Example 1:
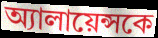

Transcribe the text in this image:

অ্যালায়েন্সকে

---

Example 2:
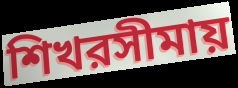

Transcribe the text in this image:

শিখরসীমায়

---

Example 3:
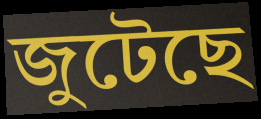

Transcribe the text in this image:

জুটেছে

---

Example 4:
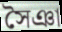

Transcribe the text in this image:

সৈঞা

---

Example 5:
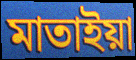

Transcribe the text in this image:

মাতাইয়া